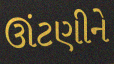
ઊંટણીને